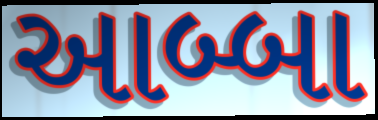
આબ્બા